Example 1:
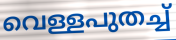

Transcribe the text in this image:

വെള്ളപുതച്ച്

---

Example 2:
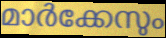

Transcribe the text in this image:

മാർക്കേസും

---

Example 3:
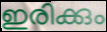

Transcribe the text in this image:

ഇരിക്കും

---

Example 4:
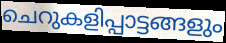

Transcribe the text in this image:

ചെറുകളിപ്പാട്ടങ്ങളും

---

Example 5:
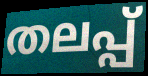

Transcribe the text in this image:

തലപ്പ്